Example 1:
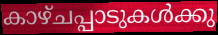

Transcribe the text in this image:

കാഴ്ചപ്പാടുകൾക്കു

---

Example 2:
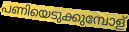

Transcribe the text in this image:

പണിയെടുക്കുമ്പോള്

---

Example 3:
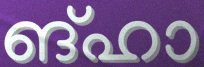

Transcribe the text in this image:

ങ്ഹാ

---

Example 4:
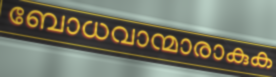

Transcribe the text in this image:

ബോധവാന്മാരാകുക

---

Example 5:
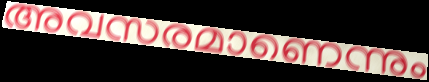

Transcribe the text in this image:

അവസരമാണെന്നും